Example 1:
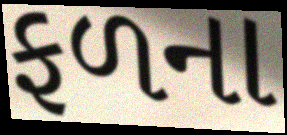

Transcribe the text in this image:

ફળના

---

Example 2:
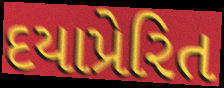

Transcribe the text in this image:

દયાપ્રેરિત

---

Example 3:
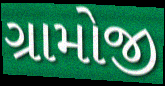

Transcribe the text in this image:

ગ્રામોજી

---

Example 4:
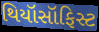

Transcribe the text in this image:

થિયૉસૉફિસ્ટ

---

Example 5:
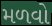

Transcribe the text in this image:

મળવો